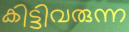
കിട്ടിവരുന്ന